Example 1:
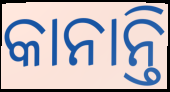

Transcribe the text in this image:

କାନାନ୍ତି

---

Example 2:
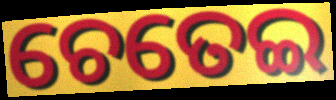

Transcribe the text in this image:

ଚେତେଇ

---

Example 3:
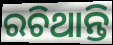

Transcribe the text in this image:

ରଚିଥାନ୍ତି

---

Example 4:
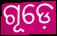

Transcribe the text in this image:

ଗୂଡ଼େ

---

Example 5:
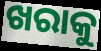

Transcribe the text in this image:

ଖରାକୁ